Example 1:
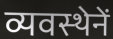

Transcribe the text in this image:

व्यवस्थेनें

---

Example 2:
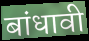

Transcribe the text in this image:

बांधावी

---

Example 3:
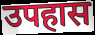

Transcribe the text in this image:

उपहास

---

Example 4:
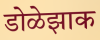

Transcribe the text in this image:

डोळेझाक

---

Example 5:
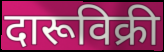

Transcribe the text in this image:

दारूविक्री